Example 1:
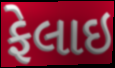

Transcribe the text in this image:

ફેલાઇ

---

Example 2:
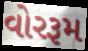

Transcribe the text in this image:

વોરરૂમ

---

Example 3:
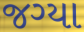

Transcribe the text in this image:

જગ્યા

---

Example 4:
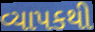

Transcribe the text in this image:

વ્યાપકથી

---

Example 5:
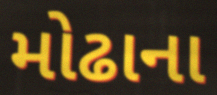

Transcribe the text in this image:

મોઢાના